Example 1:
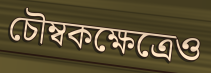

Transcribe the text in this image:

চৌম্বকক্ষেত্রেও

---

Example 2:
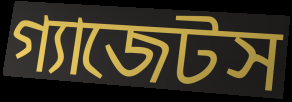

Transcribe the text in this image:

গ্যাজেটস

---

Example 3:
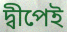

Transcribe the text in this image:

দ্বীপেই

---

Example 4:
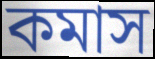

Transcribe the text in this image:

কমাস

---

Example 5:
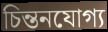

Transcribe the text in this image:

চিন্তনযোগ্য